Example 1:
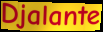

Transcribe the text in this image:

Djalante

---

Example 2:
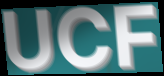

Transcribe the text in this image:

UCF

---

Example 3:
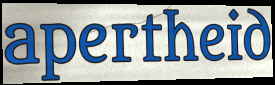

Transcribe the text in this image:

apertheid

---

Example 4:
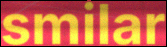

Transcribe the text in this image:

smilar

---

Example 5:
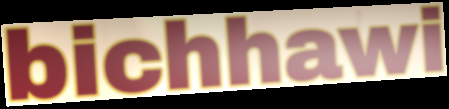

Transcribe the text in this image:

bichhawi